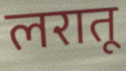
लरातू